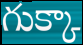
గుక్కా